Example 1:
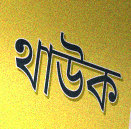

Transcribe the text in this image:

থাউক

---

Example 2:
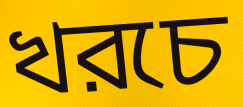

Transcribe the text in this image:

খরচে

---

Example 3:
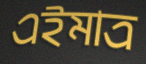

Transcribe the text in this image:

এইমাত্র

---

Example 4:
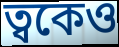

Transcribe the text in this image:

ত্বকেও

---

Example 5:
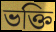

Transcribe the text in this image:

ভক্তি